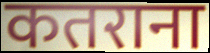
कतराना